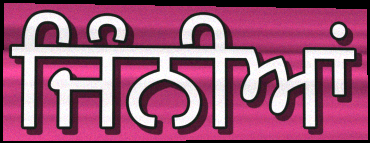
ਜਿੰਨੀਆਂ